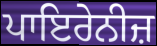
ਪਾਇਰੇਨੀਜ਼